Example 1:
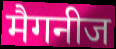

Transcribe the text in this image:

मैगनीज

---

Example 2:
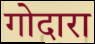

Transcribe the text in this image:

गोदारा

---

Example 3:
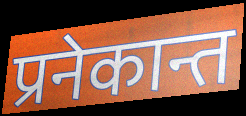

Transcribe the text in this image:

प्रनेकान्त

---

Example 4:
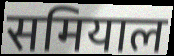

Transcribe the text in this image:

समियाल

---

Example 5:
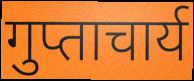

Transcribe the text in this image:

गुप्ताचार्य